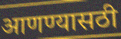
आणण्यासठी